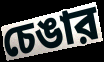
চেঙার